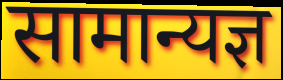
सामान्यज्ञ